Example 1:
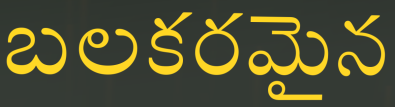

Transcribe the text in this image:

బలకరమైన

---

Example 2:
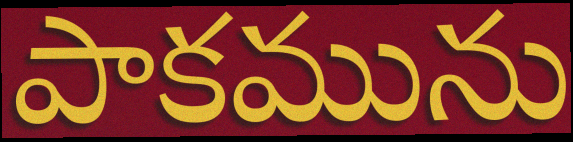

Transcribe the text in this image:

పాకమును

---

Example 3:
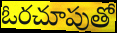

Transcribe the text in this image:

ఓరచూపుతో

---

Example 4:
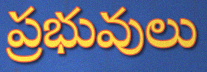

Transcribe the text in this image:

ప్రభువులు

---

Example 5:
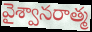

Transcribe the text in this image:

వైశ్వానరాత్మ